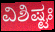
ವಿಶಿಷ್ಟಃ